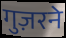
गुज़रने